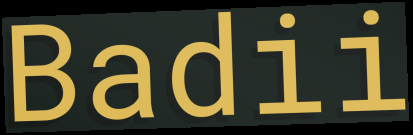
Badii